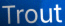
Trout